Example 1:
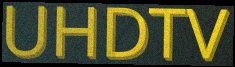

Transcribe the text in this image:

UHDTV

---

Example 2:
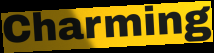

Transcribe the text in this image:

Charming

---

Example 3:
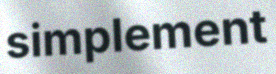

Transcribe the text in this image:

simplement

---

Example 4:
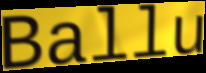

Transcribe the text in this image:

Ballu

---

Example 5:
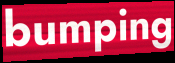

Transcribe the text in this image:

bumping